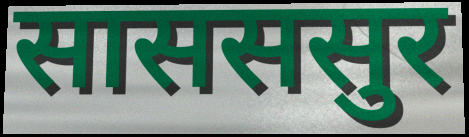
सासससुर